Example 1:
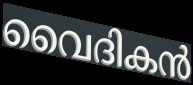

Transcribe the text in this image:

വൈദികൻ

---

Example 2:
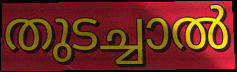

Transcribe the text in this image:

തുടച്ചാൽ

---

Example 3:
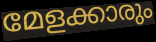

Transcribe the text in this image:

മേളക്കാരും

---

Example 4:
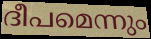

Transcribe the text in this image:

ദീപമെന്നും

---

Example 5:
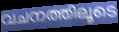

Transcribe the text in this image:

വചനത്തിലൂടെ